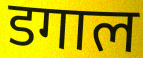
डगाल